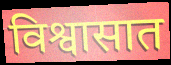
विश्वासात